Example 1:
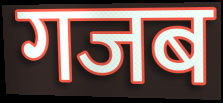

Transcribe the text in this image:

गजब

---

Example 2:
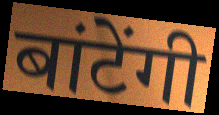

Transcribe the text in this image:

बांटेंगी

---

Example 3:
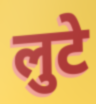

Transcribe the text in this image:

लुटे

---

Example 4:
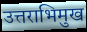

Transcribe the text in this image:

उत्तराभिमुख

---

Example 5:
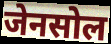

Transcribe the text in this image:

जेनसोल